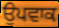
ਉਪਵਾਕ